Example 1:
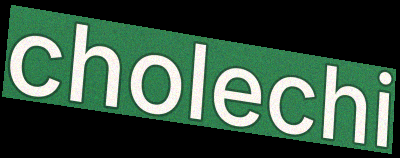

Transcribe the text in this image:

cholechi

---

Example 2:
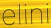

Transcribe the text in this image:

elini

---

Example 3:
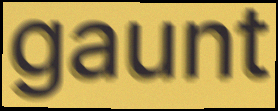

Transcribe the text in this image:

gaunt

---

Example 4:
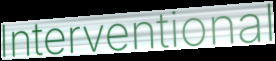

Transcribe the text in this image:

Interventional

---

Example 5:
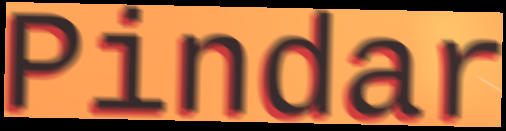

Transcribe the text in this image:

Pindar